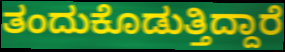
ತಂದುಕೊಡುತ್ತಿದ್ದಾರೆ